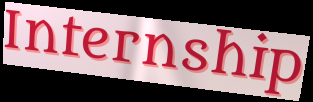
Internship